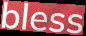
bless